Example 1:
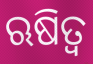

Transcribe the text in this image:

ଋଷିତ୍ୱ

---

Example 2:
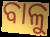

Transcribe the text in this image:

ବାଳୁ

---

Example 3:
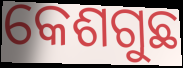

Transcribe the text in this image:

କେଶଗୁଛ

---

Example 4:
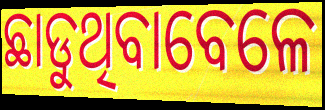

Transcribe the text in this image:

ଛାଡୁଥିବାବେଳେ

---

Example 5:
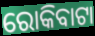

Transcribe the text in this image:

ରୋକିବାଟା